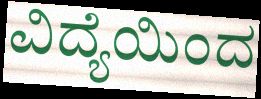
ವಿದ್ಯೆಯಿಂದ